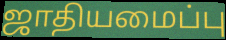
ஜாதியமைப்பு